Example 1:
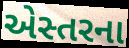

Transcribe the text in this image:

એસ્તરના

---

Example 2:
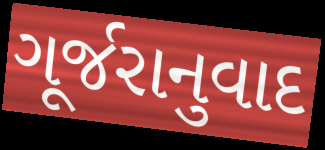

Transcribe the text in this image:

ગૂર્જરાનુવાદ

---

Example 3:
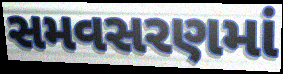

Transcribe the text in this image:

સમવસરણમાં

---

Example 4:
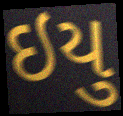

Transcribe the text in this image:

ઇયુ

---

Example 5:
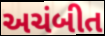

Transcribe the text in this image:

અચંબીત